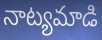
నాట్యమాడి